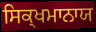
ਸਿਕ੍ਖਮਾਨਾਯ